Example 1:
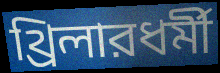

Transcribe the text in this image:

থ্রিলারধর্মী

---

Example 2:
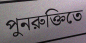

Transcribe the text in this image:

পুনরুক্তিতে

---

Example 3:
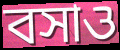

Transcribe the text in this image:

বসাও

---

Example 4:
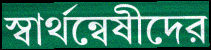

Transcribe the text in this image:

স্বার্থন্বেষীদের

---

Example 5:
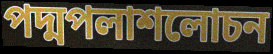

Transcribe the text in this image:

পদ্মপলাশলোচন